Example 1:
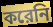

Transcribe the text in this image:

করেনি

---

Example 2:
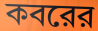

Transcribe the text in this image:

কবরের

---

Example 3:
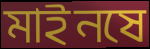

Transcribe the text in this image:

মাইনষে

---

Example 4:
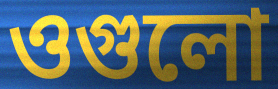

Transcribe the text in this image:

ওগুলো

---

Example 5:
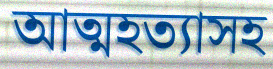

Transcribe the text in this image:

আত্মহত্যাসহ